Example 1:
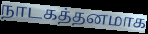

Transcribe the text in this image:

நாடகத்தனமாக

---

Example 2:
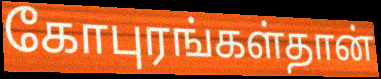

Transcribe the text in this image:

கோபுரங்கள்தான்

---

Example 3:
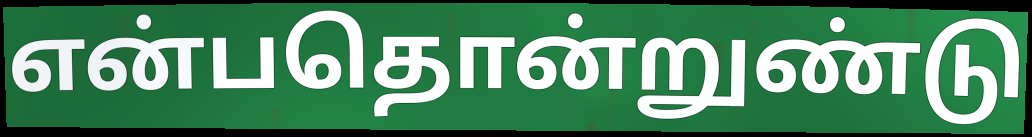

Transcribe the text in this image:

என்பதொன்றுண்டு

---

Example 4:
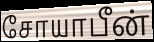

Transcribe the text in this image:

சோயாபீன்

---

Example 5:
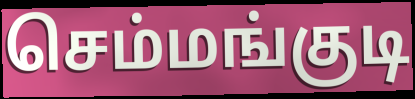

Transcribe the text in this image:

செம்மங்குடி